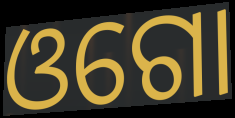
ଓଗୋ